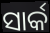
ସାର୍କ